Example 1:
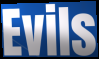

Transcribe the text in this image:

Evils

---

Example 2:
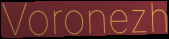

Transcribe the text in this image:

Voronezh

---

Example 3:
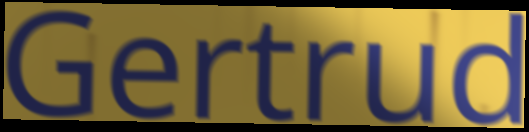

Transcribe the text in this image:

Gertrud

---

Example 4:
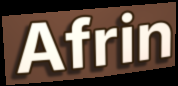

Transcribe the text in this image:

Afrin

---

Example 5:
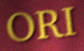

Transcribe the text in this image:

ORI